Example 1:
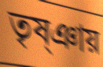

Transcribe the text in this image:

তৃষ্ঞায়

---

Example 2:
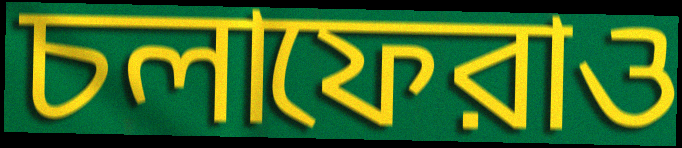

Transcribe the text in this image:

চলাফেরাও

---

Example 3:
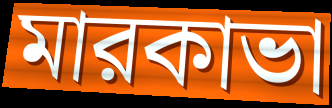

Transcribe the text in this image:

মারকাভা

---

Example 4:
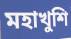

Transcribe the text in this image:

মহাখুশি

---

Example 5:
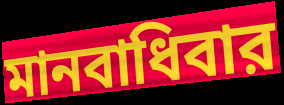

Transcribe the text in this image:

মানবাধিবার